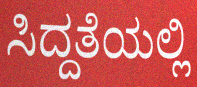
ಸಿದ್ದತೆಯಲ್ಲಿ